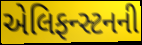
એલિફન્સ્ટનની